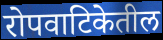
रोपवाटिकेतील